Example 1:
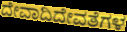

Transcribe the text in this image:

ದೇವಾದಿದೇವತೆಗಳ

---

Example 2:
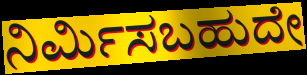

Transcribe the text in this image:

ನಿರ್ಮಿಸಬಹುದೇ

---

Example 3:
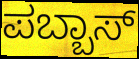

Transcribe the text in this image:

ಪಬ್ಬಾಸ್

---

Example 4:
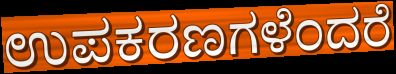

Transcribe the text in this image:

ಉಪಕರಣಗಳೆಂದರೆ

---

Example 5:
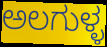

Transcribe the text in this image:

ಅಲಗುಳ್ಳ